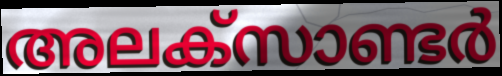
അലക്സാണ്ടർ